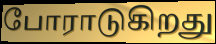
போராடுகிறது